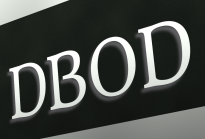
DBOD